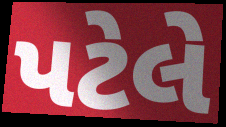
પટેલે